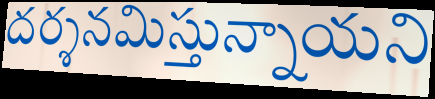
దర్శనమిస్తున్నాయని